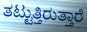
ತಟ್ಟುತ್ತಿರುತ್ತಾರೆ